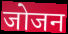
जोजन